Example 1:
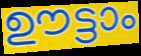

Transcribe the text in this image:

ഊട്ടാം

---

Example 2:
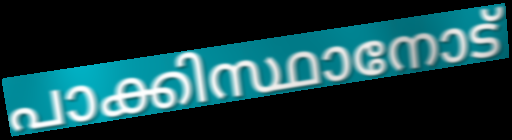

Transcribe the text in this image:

പാക്കിസ്ഥാനോട്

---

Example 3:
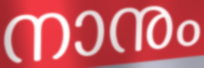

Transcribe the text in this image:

നാനും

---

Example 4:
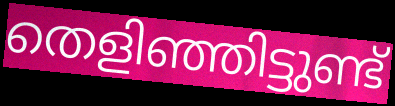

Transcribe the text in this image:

തെളിഞ്ഞിട്ടുണ്ട്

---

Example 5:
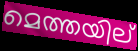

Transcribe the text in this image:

മെത്തയില്